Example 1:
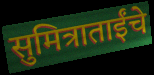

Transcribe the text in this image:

सुमित्राताईंचे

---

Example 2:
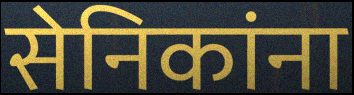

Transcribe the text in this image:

सेनिकांना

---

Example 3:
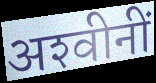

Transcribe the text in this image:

अश्वीनीं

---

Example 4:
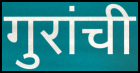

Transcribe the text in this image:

गुरांची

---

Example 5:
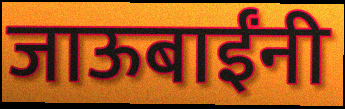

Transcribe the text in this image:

जाऊबाईंनी